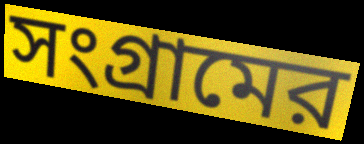
সংগ্রামের